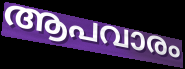
ആപവാരം